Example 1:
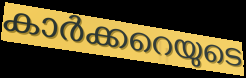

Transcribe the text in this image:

കാർക്കറെയുടെ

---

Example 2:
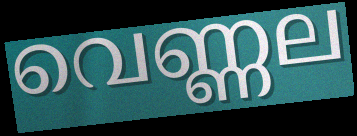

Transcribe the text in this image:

വെണ്ണല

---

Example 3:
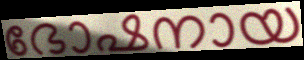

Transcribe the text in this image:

ഭോഷനായ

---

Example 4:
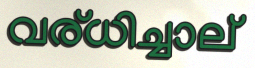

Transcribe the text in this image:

വര്ധിച്ചാല്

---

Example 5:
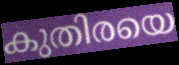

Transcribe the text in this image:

കുതിരയെ